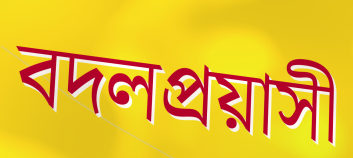
বদলপ্রয়াসী